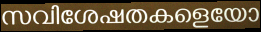
സവിശേഷതകളെയോ